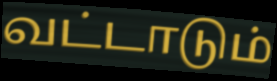
வட்டாடும்